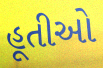
હૂતીઓ